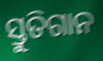
ସ୍ତୁତିଗାନ